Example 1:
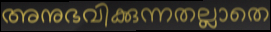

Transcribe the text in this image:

അനുഭവിക്കുന്നതല്ലാതെ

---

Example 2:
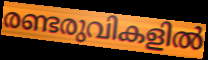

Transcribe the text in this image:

രണ്ടരുവികളിൽ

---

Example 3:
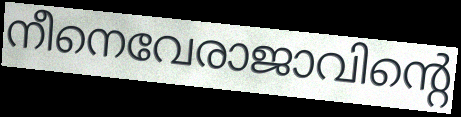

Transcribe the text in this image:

നീനെവേരാജാവിന്റെ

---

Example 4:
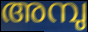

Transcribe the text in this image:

അമ്പു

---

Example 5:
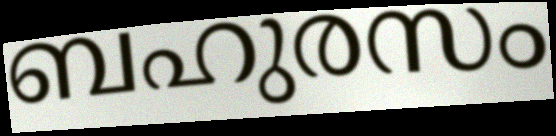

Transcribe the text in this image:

ബഹുരസം